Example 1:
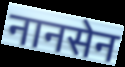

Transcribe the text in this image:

नानसेन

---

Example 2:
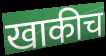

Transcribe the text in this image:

खाकीच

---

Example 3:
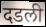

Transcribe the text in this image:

दडली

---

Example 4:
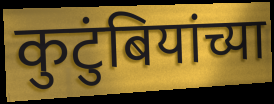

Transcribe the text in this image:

कुटुंबियांच्या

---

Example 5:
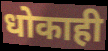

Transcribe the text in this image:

धोकाही